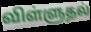
விள்ளுதல்